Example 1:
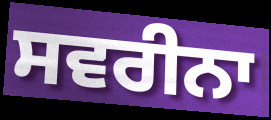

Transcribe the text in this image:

ਸਵਰੀਨਾ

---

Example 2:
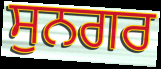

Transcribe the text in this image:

ਸੁਨਗਰ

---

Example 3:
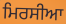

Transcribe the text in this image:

ਮਿਰਸੀਆ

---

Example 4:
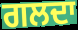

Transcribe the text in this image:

ਗਲਦਾ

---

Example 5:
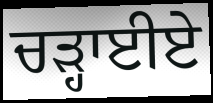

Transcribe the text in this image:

ਚੜ੍ਹਾਈਏ